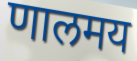
णालमय